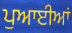
ਪੁਆਈਆਂ